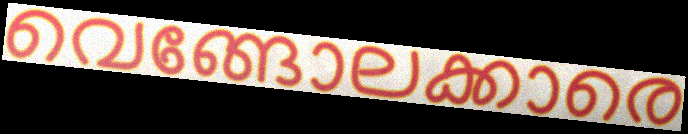
വെങ്ങോലക്കാരെ